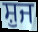
ਸ਼ੁਜ